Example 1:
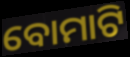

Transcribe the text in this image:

ବୋମାଟି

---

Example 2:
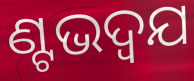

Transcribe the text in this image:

ଣ୍ଟଭଦ୍ଵଯ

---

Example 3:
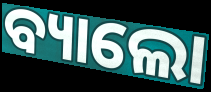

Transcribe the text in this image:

ବ୍ୟାଲୋ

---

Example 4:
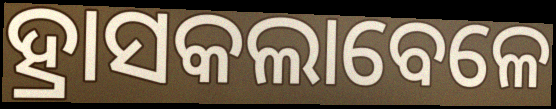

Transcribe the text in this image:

ହ୍ରାସକଲାବେଳେ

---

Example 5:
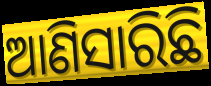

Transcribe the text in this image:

ଆଣିସାରିଛି